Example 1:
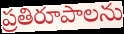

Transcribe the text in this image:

ప్రతిరూపాలను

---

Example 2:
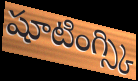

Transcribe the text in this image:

షూటింగ్స్కి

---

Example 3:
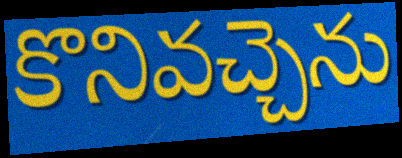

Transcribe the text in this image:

కొనివచ్చెను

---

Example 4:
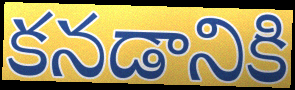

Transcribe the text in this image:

కనడానికి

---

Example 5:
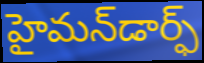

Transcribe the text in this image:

హైమన్‌డార్ఫ్